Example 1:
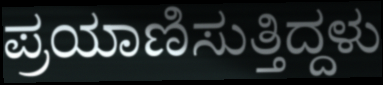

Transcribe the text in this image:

ಪ್ರಯಾಣಿಸುತ್ತಿದ್ದಳು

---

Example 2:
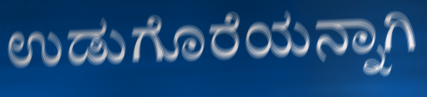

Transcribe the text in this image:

ಉಡುಗೊರೆಯನ್ನಾಗಿ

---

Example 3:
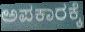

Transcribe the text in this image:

ಅಪಕಾರಕ್ಕೆ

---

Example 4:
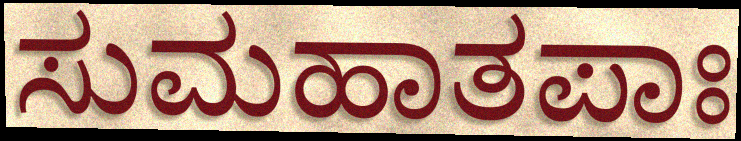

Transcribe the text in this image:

ಸುಮಹಾತಪಾಃ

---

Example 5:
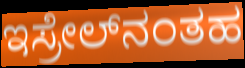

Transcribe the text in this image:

ಇಸ್ರೇಲ್‌ನಂತಹ